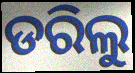
ଡରିଲୁ